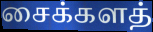
சைக்களத்